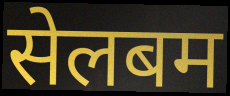
सेलबम